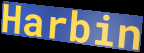
Harbin